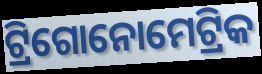
ଟ୍ରିଗୋନୋମେଟ୍ରିକ